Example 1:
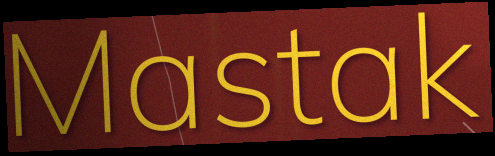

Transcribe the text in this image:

Mastak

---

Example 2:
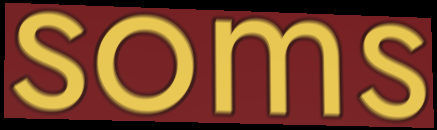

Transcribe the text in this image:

soms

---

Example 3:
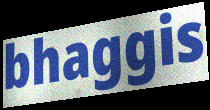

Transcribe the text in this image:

bhaggis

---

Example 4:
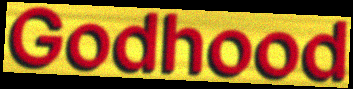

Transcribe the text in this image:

Godhood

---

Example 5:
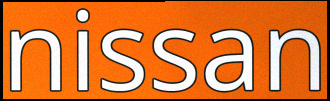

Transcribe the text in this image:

nissan